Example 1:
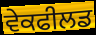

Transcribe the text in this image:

ਵੇਕਫੀਲਡ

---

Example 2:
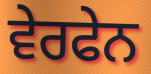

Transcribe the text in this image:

ਵੇਰਫੇਨ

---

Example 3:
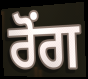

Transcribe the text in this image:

ਰੋਂਗ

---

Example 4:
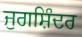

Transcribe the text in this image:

ਜੁਗਸ਼ਿੰਦਰ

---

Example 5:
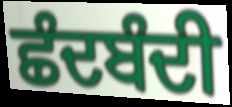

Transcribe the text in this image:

ਛੰਦਬੰਦੀ